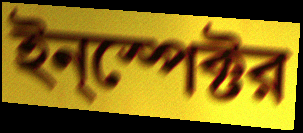
ইন্‌স্পেক্টর